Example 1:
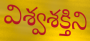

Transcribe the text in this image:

విశ్వశక్తిని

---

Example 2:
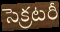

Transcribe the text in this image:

సెక్రటరీ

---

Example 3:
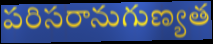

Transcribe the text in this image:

పరిసరానుగుణ్యత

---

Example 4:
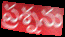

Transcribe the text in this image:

ప్రశ్నను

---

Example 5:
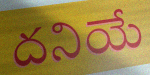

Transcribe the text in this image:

దనియే